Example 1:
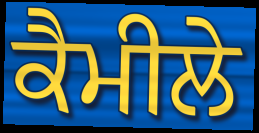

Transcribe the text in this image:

ਕੈਮੀਲੇ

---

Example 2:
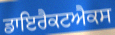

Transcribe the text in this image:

ਡਾਇਰੈਕਟਐਕਸ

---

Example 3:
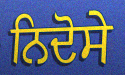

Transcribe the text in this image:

ਨਿਦੋਸੇ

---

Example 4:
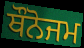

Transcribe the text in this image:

ਥੌਨੋਜਮ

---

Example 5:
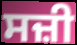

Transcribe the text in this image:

ਸਜ਼ੀ